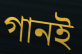
গানই